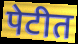
पेटीत